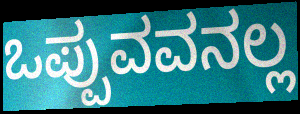
ಒಪ್ಪುವವನಲ್ಲ